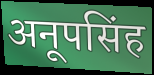
अनूपसिंह